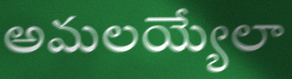
అమలయ్యేలా